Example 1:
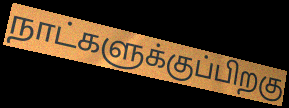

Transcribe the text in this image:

நாட்களுக்குப்பிறகு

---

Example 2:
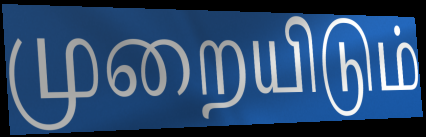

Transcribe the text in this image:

முறையிடும்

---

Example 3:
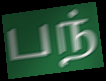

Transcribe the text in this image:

பந்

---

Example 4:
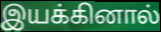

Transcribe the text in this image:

இயக்கினால்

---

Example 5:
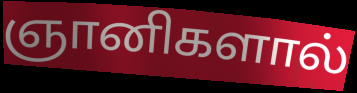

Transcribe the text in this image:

ஞானிகளால்